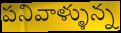
పనివాళ్ళున్న